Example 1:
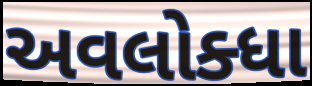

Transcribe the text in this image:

અવલોક્ધા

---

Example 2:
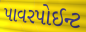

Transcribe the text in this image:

પાવરપોઈન્ટ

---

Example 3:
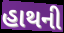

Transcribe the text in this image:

હાથની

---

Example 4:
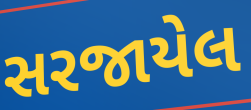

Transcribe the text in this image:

સરજાયેલ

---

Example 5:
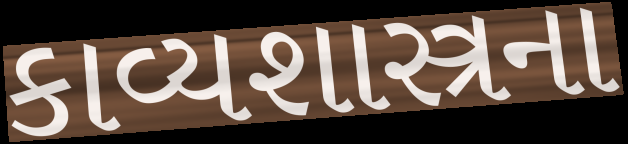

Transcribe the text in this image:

કાવ્યશાસ્ત્રના